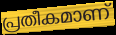
പ്രതീകമാണ്